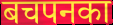
बचपनका